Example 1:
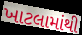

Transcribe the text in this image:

ખાટલામાંથી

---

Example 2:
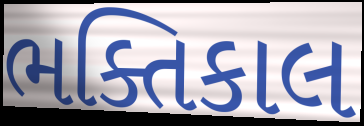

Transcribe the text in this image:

ભક્તિકાલ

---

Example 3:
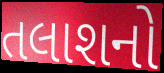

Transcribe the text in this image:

તલાશનો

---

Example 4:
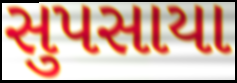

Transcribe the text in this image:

સુપસાયા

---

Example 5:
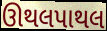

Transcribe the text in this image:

ઊથલપાથલ